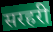
सरहरी